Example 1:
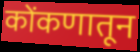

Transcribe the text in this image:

कोंकणातून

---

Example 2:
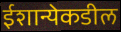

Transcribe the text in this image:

ईशान्येकडील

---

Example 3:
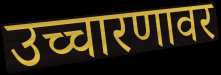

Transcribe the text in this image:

उच्चारणावर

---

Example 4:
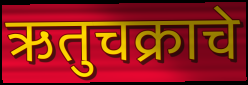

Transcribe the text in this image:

ऋतुचक्राचे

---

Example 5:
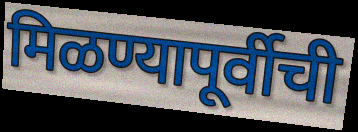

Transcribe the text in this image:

मिळण्यापूर्वीची